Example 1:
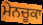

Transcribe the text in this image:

ਮੇਨਚੂਕਾ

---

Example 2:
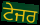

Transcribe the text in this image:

ਟੇਜਰ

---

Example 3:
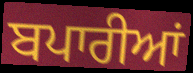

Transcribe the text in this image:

ਬਪਾਰੀਆਂ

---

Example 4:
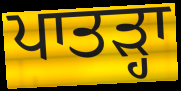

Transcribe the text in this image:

ਪਾਤੜ੍ਹਾ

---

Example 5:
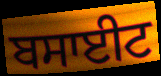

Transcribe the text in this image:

ਬਸਾਈਟ